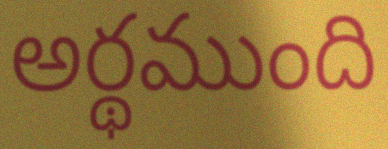
అర్థముంది